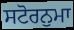
ਸਟੋਰਨੁਮਾ